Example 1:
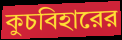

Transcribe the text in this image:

কুচবিহারের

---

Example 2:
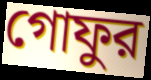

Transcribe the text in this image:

গোফুর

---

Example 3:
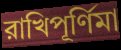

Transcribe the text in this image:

রাখিপূর্ণিমা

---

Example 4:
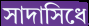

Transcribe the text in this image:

সাদাসিধে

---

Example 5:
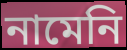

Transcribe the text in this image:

নামেনি